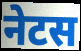
नेटस